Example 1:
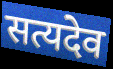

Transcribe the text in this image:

सत्यदेव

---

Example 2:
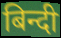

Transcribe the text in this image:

बिन्दी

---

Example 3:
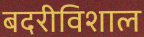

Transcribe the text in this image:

बदरीविशाल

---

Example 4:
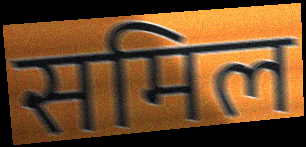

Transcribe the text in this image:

समिल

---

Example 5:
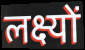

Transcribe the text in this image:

लक्ष्यों